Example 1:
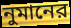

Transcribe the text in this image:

নুমানের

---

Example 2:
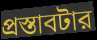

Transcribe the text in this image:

প্রস্তাবটার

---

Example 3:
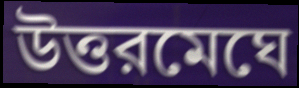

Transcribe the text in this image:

উত্তরমেঘে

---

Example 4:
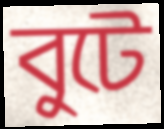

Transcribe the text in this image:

বুটে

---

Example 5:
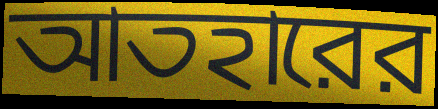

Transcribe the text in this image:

আতহারের